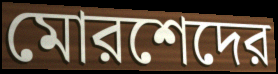
মোরশেদের